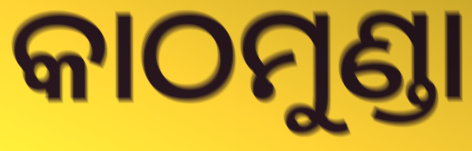
କାଠମୁଣ୍ଡା